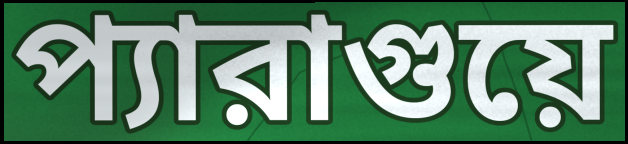
প্যারাগুয়ে